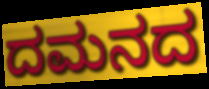
ದಮನದ